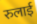
रुलाई